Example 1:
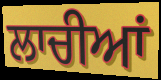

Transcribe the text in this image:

ਲਾਚੀਆਂ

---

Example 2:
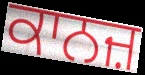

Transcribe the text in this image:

ਕਾਨਜ਼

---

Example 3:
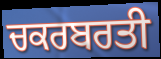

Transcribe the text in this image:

ਚਕਰਬਰਤੀ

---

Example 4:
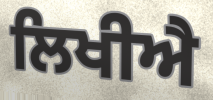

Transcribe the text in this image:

ਲਿਖੀਐ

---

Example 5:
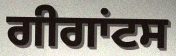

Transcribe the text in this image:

ਗੀਗਾਂਟਸ